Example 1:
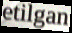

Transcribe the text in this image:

etilgan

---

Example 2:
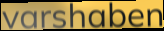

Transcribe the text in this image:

varshaben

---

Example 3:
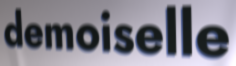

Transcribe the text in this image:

demoiselle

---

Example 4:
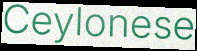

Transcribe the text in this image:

Ceylonese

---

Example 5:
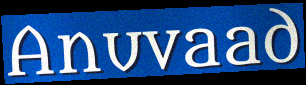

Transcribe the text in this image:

Anuvaad